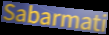
Sabarmati